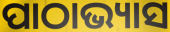
ପାଠାଭ୍ୟାସ